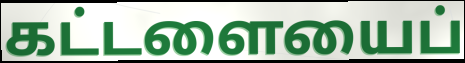
கட்டளையைப்